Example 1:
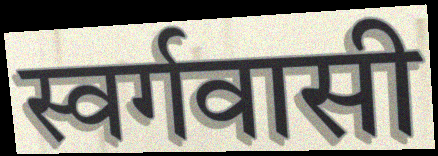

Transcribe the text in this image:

स्वर्गवासी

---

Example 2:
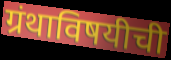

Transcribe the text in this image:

ग्रंथाविषयीची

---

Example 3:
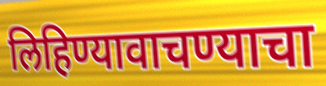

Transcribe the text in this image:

लिहिण्यावाचण्याचा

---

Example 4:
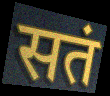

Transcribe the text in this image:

सतं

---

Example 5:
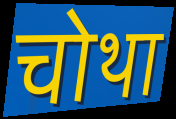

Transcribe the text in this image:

चोथा